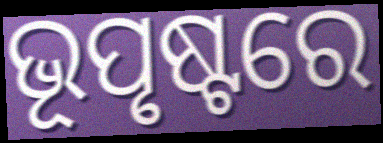
ଭୂପୃଷ୍ଟରେ